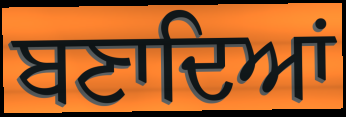
ਬਣਾਦਿਆਂ